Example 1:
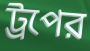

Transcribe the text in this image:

ট্রপের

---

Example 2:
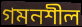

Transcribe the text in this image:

গমনশীল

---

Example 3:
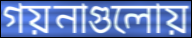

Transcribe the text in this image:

গয়নাগুলোয়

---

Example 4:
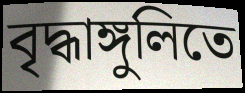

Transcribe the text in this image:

বৃদ্ধাঙ্গুলিতে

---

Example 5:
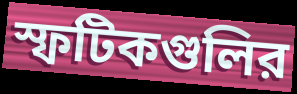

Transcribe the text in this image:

স্ফটিকগুলির